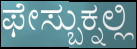
ಫೇಸ್ಬುಕ್ನಲ್ಲಿ